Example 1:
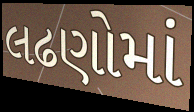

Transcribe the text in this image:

લઢણોમાં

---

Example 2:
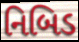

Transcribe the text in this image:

નિબિડ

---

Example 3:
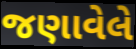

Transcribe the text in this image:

જણાવેલે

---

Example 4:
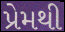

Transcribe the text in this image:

પ્રેમથી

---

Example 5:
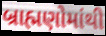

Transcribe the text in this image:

બ્રાહ્મણોમાંથી